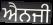
ਐਨਜੀ